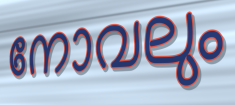
നോവലും